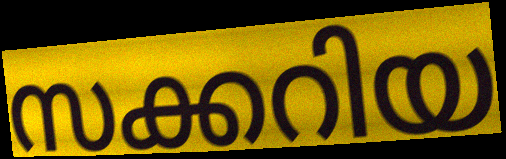
സക്കറിയ